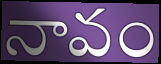
నావం